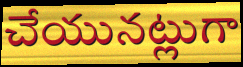
చేయునట్లుగా